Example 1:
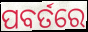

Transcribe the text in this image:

ପବର୍ତରେ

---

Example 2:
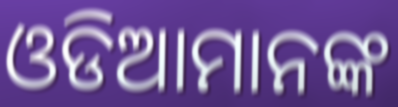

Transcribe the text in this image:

ଓଡିଆମାନଙ୍କ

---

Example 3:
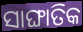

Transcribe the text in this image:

ସାଙ୍ଘାତିକ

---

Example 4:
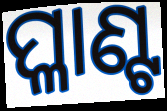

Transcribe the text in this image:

ପ୍ଳାଣ୍ଟ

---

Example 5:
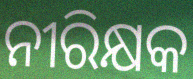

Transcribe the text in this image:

ନୀରିକ୍ଷକ